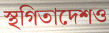
স্থগিতাদেশও